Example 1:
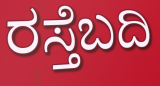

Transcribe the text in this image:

ರಸ್ತೆಬದಿ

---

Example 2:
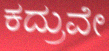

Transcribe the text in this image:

ಕದ್ರುವೇ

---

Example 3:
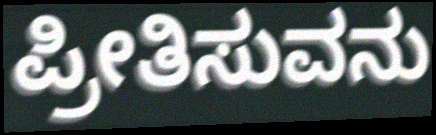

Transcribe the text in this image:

ಪ್ರೀತಿಸುವನು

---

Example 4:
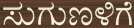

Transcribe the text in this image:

ಸುಗುಣಳಿಗೆ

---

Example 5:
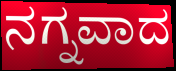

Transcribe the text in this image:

ನಗ್ನವಾದ